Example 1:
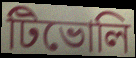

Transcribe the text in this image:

টিভোলি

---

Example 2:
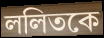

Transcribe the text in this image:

ললিতকে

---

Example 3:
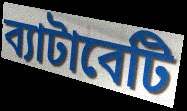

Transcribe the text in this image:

ব্যাটাবেটি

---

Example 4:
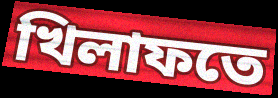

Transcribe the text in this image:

খিলাফতে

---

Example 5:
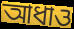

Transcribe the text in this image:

আধাও